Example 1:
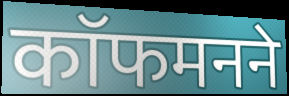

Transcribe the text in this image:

कॉफमनने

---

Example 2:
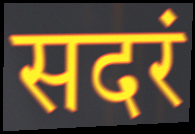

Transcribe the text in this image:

सदरं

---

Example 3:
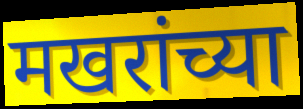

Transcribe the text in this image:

मखरांच्या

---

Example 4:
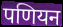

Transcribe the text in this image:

पणियन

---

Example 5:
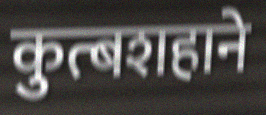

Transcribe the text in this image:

कुत्बशहाने